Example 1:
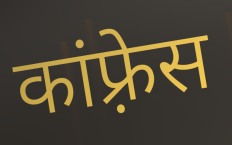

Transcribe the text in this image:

कांफ़्रेस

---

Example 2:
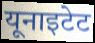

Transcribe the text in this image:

यूनाइटेट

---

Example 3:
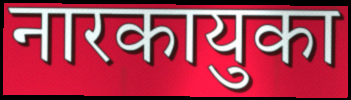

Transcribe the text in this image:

नारकायुका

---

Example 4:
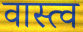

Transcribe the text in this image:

वास्त्व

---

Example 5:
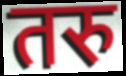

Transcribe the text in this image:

तरु